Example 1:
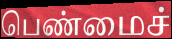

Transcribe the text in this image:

பெண்மைச்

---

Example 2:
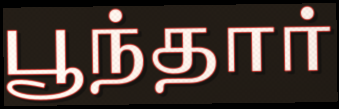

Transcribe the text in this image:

பூந்தார்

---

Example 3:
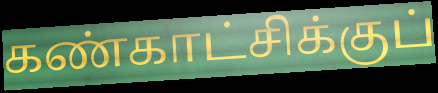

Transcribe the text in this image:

கண்காட்சிக்குப்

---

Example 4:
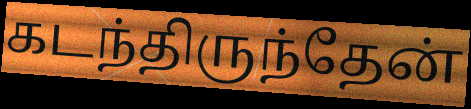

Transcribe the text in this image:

கடந்திருந்தேன்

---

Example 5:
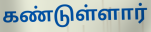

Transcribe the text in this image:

கண்டுள்ளார்